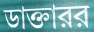
ডাক্তারর